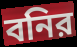
বনির